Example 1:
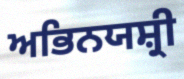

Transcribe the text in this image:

ਅਭਿਨਯਸ਼੍ਰੀ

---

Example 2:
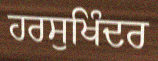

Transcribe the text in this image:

ਹਰਸੁਖਿੰਦਰ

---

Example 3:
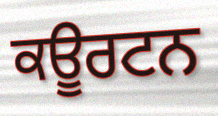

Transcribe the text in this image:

ਕਊਰਟਨ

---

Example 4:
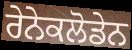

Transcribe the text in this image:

ਰੇਨੇਕਲੋਡੇਨ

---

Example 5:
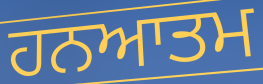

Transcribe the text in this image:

ਹਨਆਤਮ